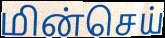
மின்செய்